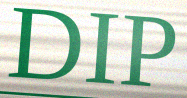
DIP